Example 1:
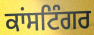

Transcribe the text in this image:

ਕਾਂਸਟਿੰਗਰ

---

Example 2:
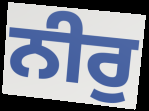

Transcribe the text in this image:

ਨੀਰੁ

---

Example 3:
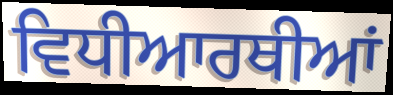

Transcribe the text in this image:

ਵਿਧੀਆਰਥੀਆਂ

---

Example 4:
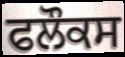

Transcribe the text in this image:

ਫਲੌਕਸ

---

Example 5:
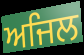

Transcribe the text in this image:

ਅਜਿਲ